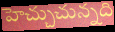
హెచ్చుచున్నది